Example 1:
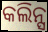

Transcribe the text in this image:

କଲିନ୍ସ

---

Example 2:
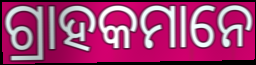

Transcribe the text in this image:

ଗ୍ରାହକମାନେ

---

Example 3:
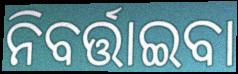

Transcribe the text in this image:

ନିବର୍ତ୍ତାଇବା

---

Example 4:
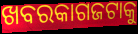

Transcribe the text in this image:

ଖବରକାଗଜଟାକୁ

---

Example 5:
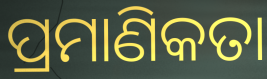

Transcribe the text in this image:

ପ୍ରମାଣିକତା